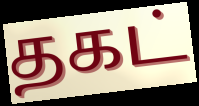
தகட்